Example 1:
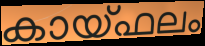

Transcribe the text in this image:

കായ്ഫലം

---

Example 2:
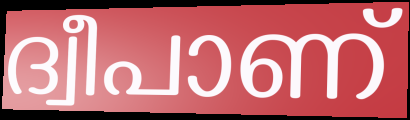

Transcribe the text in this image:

ദ്വീപാണ്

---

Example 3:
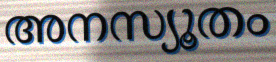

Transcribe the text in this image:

അനസ്യൂതം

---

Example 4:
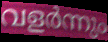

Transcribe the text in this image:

വളർന്നും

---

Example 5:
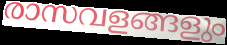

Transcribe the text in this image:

രാസവളങ്ങളും